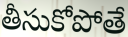
తీసుకోపోతే